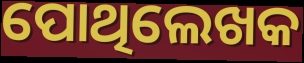
ପୋଥିଲେଖକ